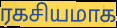
ரகசியமாக